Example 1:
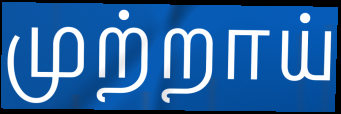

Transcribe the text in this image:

முற்றாய்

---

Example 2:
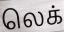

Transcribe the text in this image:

லெக்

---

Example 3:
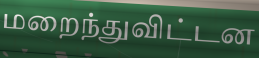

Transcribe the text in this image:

மறைந்துவிட்டன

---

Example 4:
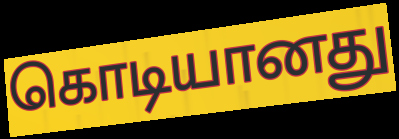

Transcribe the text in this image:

கொடியானது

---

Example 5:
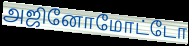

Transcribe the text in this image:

அஜினோமோட்டோ